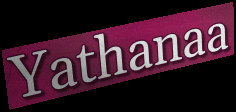
Yathanaa